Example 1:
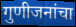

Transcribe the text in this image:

गुणीजनांचा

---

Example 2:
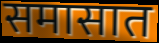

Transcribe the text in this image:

समासात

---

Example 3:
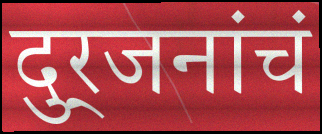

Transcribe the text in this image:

दुर्जनांचं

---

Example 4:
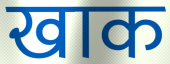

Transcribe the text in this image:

खाक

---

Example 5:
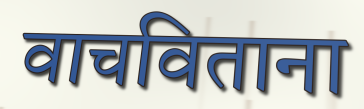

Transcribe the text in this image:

वाचविताना